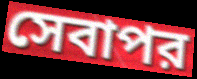
সেবাপর